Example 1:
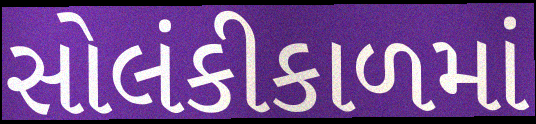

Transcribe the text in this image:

સોલંકીકાળમાં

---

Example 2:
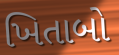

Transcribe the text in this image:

ખિતાબો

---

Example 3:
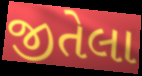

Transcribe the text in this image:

જીતેલા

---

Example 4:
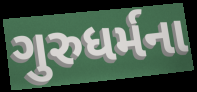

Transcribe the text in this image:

ગુરુધર્મના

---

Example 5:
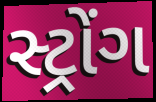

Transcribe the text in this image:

સ્ટ્રોંગ